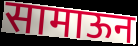
सामाऊन